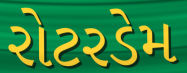
રોટરડેમ